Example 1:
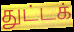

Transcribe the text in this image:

துட்டக்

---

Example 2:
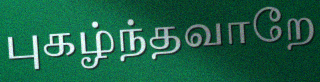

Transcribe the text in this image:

புகழ்ந்தவாறே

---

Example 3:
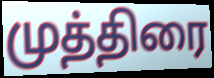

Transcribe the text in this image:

முத்திரை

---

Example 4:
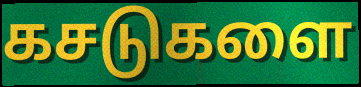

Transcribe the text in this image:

கசடுகளை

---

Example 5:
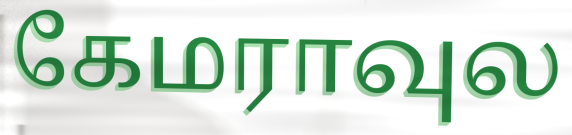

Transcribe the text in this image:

கேமராவுல